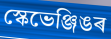
স্কেভেঞ্জিঙৰ